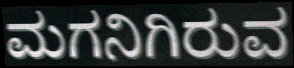
ಮಗನಿಗಿರುವ